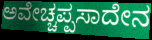
ಅವೇಚ್ಚಪ್ಪಸಾದೇನ